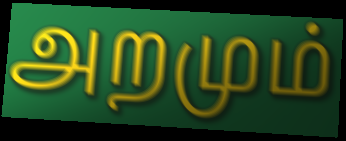
அறமும்